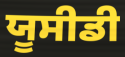
ਯੂਸੀਡੀ